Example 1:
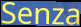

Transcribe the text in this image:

Senza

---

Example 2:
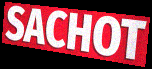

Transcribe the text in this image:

SACHOT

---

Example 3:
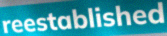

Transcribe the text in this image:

reestablished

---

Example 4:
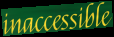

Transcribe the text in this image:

inaccessible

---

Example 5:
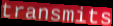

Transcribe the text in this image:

transmits